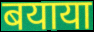
बयाया